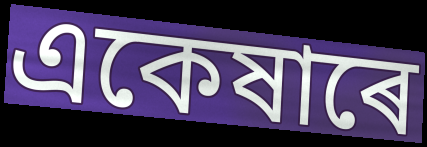
একেষাৰে